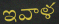
ఇవాళ